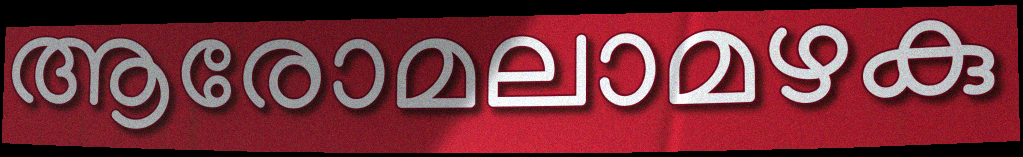
ആരോമലാമഴകു